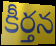
కీర్తన